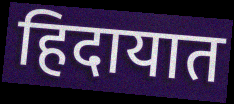
हिदायात